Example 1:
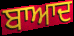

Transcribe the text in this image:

ਬਾਆਦ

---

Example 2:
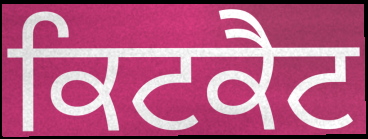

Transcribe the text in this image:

ਕਿਟਕੈਟ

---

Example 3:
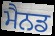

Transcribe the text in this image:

ਮੈਨਡ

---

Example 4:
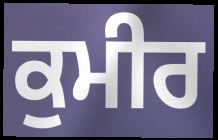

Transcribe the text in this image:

ਕੁਮੀਰ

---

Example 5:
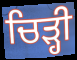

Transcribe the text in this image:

ਚਿੜ੍ਹੀ